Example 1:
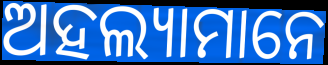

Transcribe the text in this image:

ଅହଲ୍ୟାମାନେ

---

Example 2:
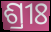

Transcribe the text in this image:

ଶ୍ରୀଃ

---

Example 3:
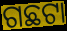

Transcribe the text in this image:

ଗଛଟା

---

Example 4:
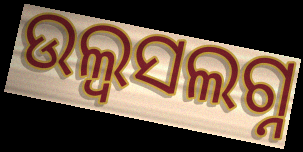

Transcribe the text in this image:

ଉଲ୍ୱସଲଗ୍ନ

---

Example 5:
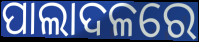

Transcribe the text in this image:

ପାଲାଦଳରେ